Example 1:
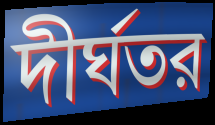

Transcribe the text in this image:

দীর্ঘতর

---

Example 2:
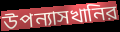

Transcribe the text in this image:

উপন্যাসখানির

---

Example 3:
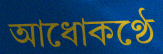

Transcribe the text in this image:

আধোকণ্ঠে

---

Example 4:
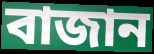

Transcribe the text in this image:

বাজান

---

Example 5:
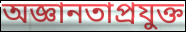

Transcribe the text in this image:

অজ্ঞানতাপ্রযুক্ত